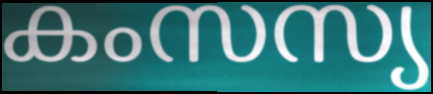
കംസസ്യ